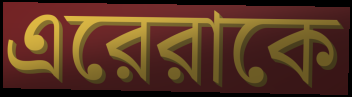
এরেরাকে